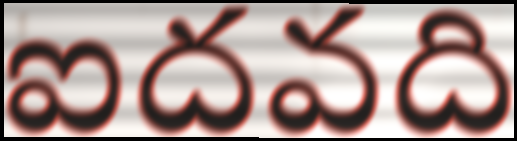
ఐదవది